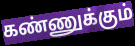
கண்ணுக்கும்